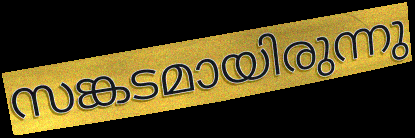
സങ്കടമായിരുന്നു